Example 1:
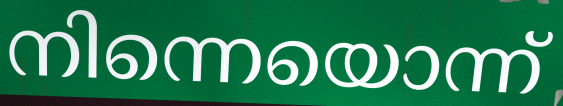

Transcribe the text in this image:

നിന്നെയൊന്ന്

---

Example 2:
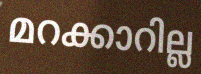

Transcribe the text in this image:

മറക്കാറില്ല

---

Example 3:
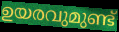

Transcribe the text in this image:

ഉയരവുമുണ്ട്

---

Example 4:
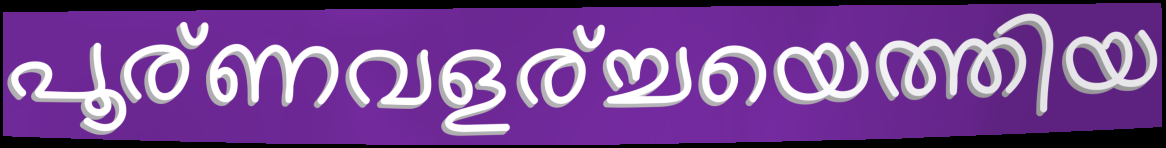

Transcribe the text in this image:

പൂര്ണവളര്ച്ചയെത്തിയ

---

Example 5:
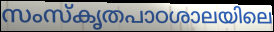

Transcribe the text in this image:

സംസ്കൃതപാഠശാലയിലെ